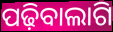
ପଢ଼ିବାଲାଗି